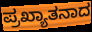
ಪ್ರಖ್ಯಾತನಾದ